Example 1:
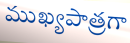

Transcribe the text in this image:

ముఖ్యపాత్రగా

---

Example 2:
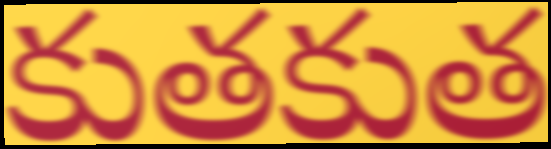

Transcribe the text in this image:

కుతకుత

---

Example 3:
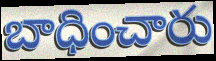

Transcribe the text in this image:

బాధించారు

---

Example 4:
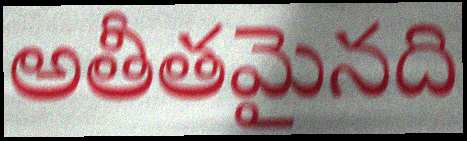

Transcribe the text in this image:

అతీతమైనది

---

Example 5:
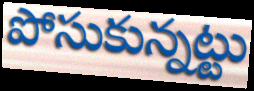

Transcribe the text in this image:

పోసుకున్నట్టు